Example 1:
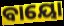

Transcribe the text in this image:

ବାୟୋ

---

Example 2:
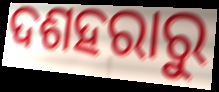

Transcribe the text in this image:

ଦଶହରାରୁ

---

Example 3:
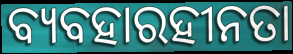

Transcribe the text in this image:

ବ୍ୟବହାରହୀନତା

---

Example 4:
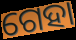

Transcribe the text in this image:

ଗେହା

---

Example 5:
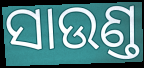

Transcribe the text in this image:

ସାଉଣ୍ଡ